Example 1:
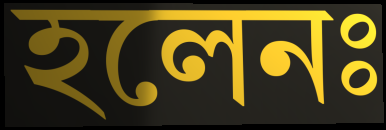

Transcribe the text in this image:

হলেনঃ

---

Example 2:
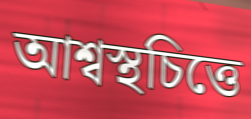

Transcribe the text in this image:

আশ্বস্থচিত্তে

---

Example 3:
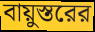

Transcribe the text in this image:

বায়ুস্তরের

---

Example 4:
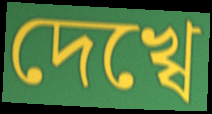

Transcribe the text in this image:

দেখ্বে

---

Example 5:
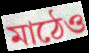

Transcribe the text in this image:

মাঠেও